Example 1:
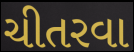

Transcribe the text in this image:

ચીતરવા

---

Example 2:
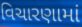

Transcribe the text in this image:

વિચારણામાં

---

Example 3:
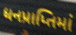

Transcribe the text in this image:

ધનપ્રાપ્તિમાં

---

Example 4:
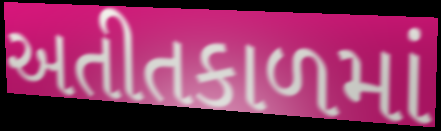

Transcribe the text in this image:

અતીતકાળમાં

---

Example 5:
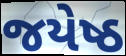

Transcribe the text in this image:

જયેષ્ઠ